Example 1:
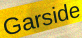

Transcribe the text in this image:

Garside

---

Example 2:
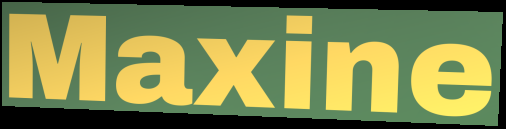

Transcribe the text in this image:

Maxine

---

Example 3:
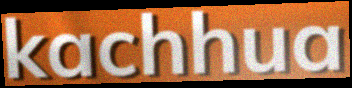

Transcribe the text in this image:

kachhua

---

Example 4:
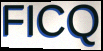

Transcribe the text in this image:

FICQ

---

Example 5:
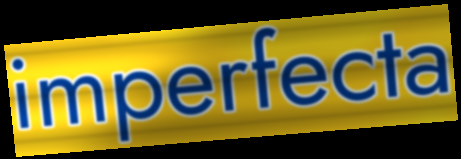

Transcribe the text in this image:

imperfecta